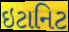
ઇટાનિટ